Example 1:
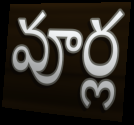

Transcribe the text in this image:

వూర్ల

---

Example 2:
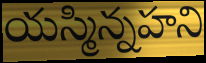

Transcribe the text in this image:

యస్మిన్నహని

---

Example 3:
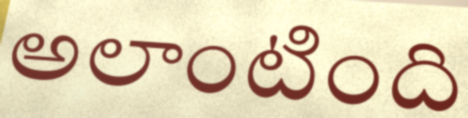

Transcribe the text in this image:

అలాంటింది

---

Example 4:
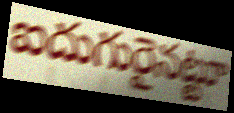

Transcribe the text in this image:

ఐదుగురైనట్టూ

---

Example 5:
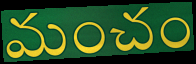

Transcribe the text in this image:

మంచం